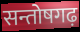
सन्तोषगढ़